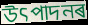
উৎপাদনৰ